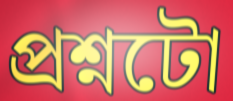
প্ৰশ্নটো